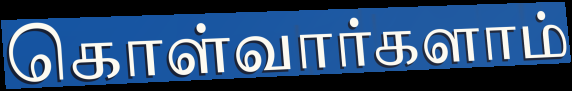
கொள்வார்களாம்